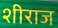
शीराज